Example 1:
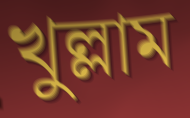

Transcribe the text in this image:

খুল্লাম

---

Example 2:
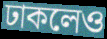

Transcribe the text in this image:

ঢাকলেও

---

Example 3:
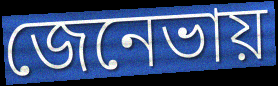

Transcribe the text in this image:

জেনেভায়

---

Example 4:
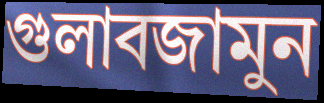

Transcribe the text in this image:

গুলাবজামুন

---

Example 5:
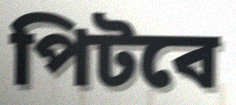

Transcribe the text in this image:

পিটবে